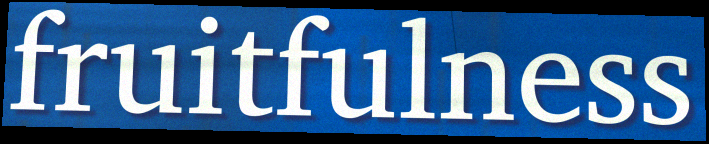
fruitfulness